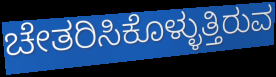
ಚೇತರಿಸಿಕೊಳ್ಳುತ್ತಿರುವ